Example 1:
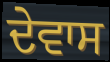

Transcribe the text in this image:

ਦੇਵਾਸ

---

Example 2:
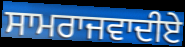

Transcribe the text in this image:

ਸਾਮਰਾਜਵਾਦੀਏ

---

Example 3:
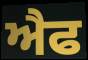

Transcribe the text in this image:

ਐਫ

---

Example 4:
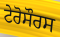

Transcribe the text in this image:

ਟੇਰੋਸੌਰਸ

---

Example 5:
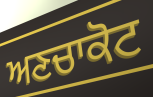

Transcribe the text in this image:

ਅਣਚਾਕੋਟ